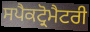
ਸਪੈਕਟ੍ਰੋਮੈਟਰੀ